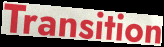
Transition